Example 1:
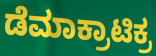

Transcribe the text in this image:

ಡೆಮಾಕ್ರಾಟಿಕ್ರ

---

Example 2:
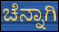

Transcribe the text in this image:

ಚೆನ್ನಾಗಿ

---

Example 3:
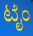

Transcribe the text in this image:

ಟೈಂ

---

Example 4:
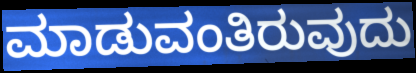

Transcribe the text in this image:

ಮಾಡುವಂತಿರುವುದು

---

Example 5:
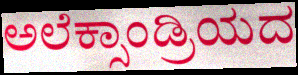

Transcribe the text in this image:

ಅಲೆಕ್ಸಾಂಡ್ರಿಯದ